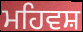
ਮਹਿਵਸ਼